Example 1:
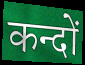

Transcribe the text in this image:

कन्दों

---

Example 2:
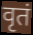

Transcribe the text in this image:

वृतं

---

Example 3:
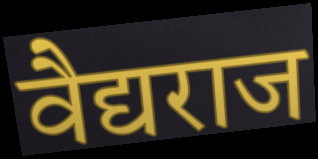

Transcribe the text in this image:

वैद्यराज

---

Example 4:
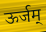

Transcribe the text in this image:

ऊर्जम्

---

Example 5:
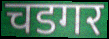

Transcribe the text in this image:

चडगर